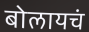
बोलायचं